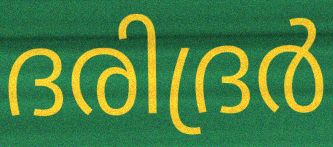
ദരിദ്രർ